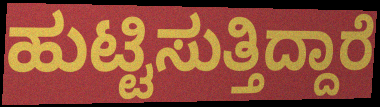
ಹುಟ್ಟಿಸುತ್ತಿದ್ದಾರೆ